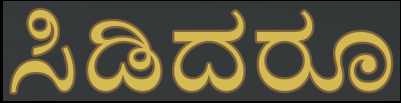
ಸಿಡಿದರೂ